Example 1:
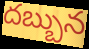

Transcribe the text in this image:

దబ్బున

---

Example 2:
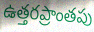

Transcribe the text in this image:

ఉత్తరప్రాంతపు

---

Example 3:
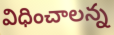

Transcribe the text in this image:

విధించాలన్న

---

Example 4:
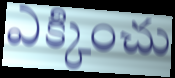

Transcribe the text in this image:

ఎక్కించు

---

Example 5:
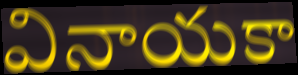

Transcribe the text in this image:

వినాయకా